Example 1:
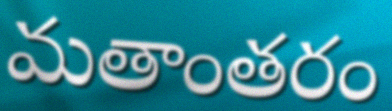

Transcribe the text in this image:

మతాంతరం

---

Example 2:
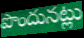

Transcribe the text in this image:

పొందునట్లు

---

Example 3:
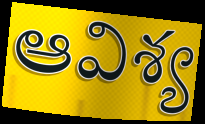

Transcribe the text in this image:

ఆవిశ్య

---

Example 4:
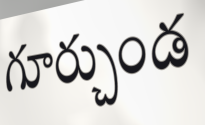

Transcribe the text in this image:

గూర్చుండ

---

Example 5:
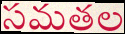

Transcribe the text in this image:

సమతల